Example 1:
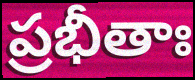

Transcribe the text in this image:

ప్రభీతాః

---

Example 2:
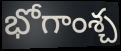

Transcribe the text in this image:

భోగాంశ్చ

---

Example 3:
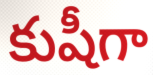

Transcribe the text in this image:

కుషీగా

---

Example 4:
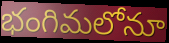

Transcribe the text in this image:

భంగిమలోనూ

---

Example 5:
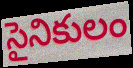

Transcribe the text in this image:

సైనికులం